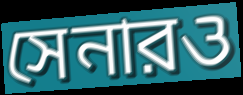
সেনারও